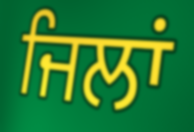
ਜਿਲਾਂ